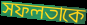
সফলতাকে